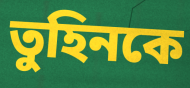
তুহিনকে